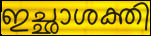
ഇച്ഛാശക്തി